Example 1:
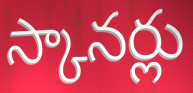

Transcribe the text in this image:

స్కానర్లు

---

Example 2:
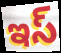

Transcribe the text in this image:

ఇస్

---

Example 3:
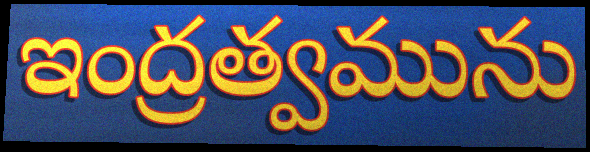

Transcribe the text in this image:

ఇంద్రత్వమును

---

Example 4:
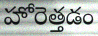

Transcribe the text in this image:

హోరెత్తడం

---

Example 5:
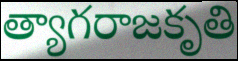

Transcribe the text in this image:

త్యాగరాజకృతి